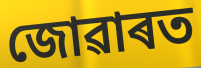
জোৱাৰত